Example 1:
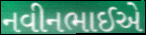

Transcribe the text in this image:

નવીનભાઈએ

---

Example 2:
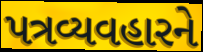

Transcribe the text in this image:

પત્રવ્યવહારને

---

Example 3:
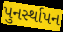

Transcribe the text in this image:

પુનર્સ્થાપન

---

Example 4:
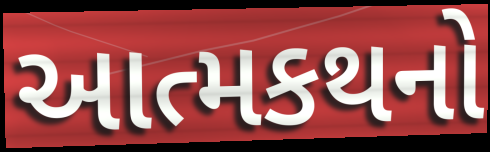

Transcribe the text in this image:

આત્મકથનો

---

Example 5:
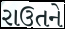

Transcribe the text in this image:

રાઉતને